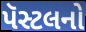
પૅસ્ટલનો